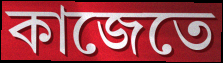
কাজেতে